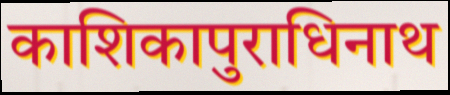
काशिकापुराधिनाथ